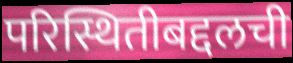
परिस्थितीबद्दलची